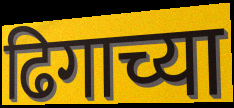
ढिगाच्या